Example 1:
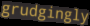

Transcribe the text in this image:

grudgingly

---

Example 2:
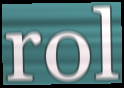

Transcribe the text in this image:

rol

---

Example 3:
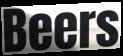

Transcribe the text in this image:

Beers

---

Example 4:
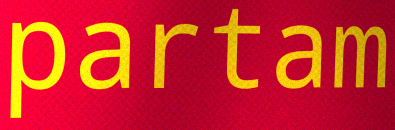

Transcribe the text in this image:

partam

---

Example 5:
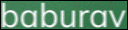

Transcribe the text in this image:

baburav